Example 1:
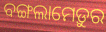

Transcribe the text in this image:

ବଙ୍ଗଲାମେଡ଼ୁର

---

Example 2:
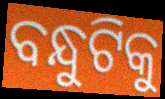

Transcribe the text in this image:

ବନ୍ଧୁଟିକୁ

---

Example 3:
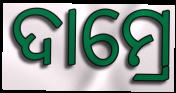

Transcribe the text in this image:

ଦାମ୍ରେ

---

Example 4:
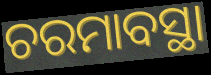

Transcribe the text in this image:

ଚରମାବସ୍ଥା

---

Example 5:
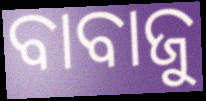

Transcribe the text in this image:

ବାବାଜୁ